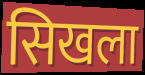
सिखला